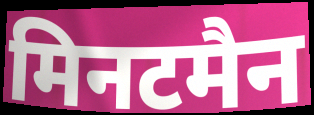
मिनटमैन